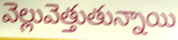
వెల్లువెత్తుతున్నాయి